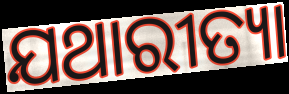
ଯଥାରୀତ୍ୟା